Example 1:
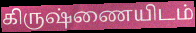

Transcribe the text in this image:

கிருஷ்ணையிடம்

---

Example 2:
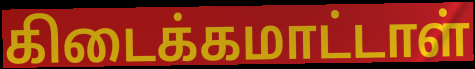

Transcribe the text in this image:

கிடைக்கமாட்டாள்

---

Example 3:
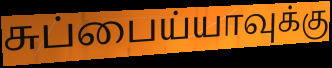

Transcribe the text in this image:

சுப்பைய்யாவுக்கு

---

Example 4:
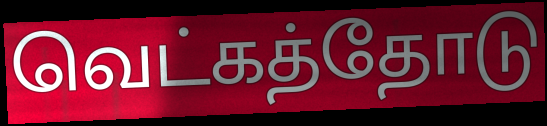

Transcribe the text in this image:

வெட்கத்தோடு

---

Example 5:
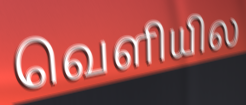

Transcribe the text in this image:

வெளியில